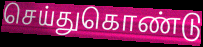
செய்துகொண்டு